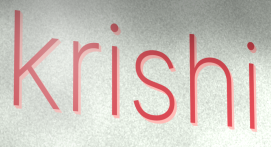
krishi